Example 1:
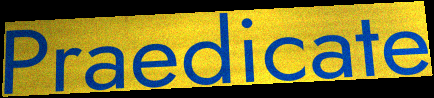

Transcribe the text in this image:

Praedicate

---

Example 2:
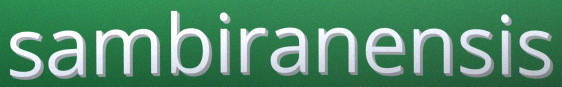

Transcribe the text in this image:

sambiranensis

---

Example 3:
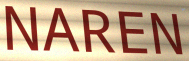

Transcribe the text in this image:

NAREN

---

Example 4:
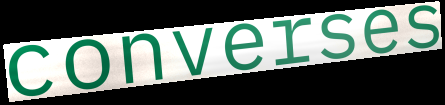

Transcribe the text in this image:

converses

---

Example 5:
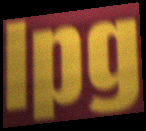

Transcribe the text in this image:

lpg